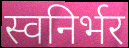
स्वनिर्भर